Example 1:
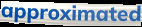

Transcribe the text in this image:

approximated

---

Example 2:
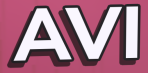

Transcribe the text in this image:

AVI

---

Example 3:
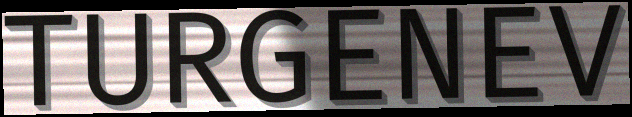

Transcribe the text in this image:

TURGENEV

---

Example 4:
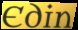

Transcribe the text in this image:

Edin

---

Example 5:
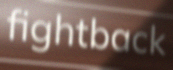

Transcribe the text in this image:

fightback